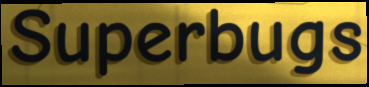
Superbugs